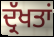
ਦ੍ਰੱਖਤਾਂ